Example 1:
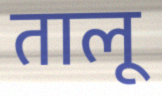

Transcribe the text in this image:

तालू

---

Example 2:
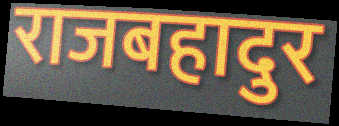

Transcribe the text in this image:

राजबहादुर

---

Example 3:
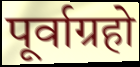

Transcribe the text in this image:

पूर्वाग्रहो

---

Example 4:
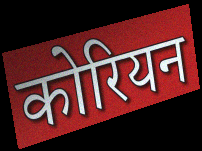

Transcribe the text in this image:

कोरियन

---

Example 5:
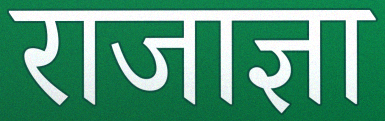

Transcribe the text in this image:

राजाज्ञा